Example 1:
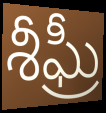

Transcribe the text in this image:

శీఘ్రీ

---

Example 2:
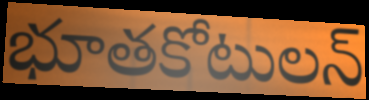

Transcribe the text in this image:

భూతకోటులన్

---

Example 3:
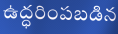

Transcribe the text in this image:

ఉద్ధరింపబడిన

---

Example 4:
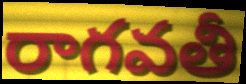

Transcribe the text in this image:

రాగవతీ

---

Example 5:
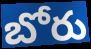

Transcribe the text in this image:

బోరు